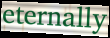
eternally